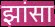
झांसा